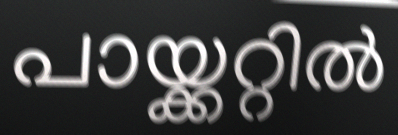
പായ്ക്കറ്റിൽ